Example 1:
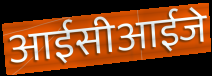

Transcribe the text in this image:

आईसीआईजे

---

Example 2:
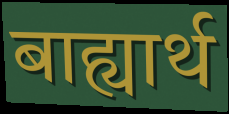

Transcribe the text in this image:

बाह्यार्थ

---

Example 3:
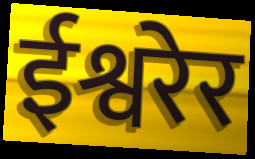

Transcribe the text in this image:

ईश्वरेर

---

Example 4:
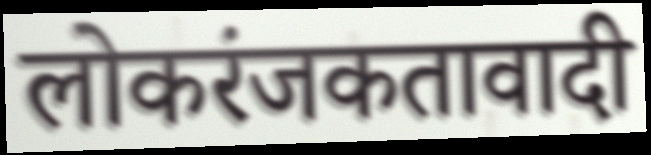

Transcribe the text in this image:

लोकरंजकतावादी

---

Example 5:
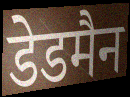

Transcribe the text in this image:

डेडमैन